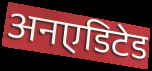
अनएडिटेड